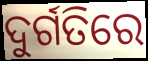
ଦୁର୍ଗତିରେ